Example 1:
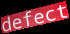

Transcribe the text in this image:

defect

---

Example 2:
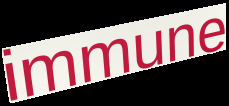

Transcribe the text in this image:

immune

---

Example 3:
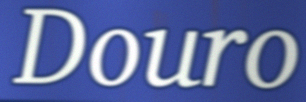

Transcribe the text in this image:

Douro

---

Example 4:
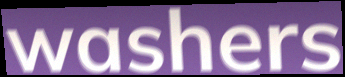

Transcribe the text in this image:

washers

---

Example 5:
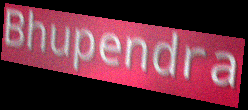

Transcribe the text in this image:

Bhupendra